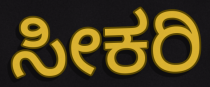
ಸೀಕರಿ